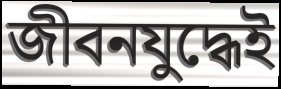
জীবনযুদ্ধেই